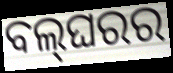
ବଲ୍‌ଘରର